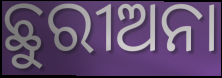
ଛୁରୀଅନା